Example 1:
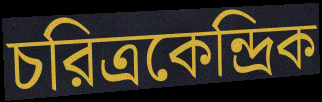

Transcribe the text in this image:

চরিত্রকেন্দ্রিক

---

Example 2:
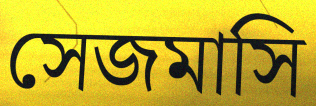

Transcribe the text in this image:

সেজমাসি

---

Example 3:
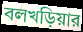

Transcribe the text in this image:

বলখড়িয়ার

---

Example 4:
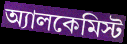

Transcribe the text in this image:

অ্যালকেমিস্ট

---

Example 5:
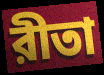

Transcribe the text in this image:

রীতা